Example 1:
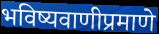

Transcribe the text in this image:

भविष्यवाणीप्रमाणे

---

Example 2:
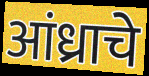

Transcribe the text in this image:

आंध्राचे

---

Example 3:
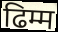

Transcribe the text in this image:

ढिम्म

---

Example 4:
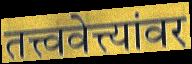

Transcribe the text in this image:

तत्त्ववेत्त्यांवर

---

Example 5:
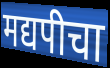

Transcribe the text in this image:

मद्यपीचा